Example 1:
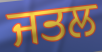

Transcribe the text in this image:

ਜਤਲ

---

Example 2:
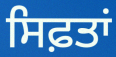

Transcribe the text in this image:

ਸਿਫ਼ਤਾਂ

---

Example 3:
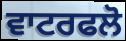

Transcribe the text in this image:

ਵਾਟਰਫਲੋ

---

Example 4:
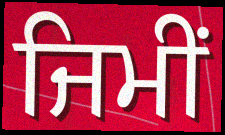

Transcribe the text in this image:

ਜਿਮੀਂ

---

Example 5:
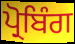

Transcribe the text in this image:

ਪ੍ਰੋਬਿੰਗ